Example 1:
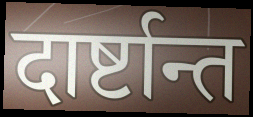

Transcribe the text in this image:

दार्ष्टान्त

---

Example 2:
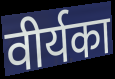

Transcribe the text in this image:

वीर्यका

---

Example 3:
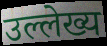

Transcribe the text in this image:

उल्लेख्य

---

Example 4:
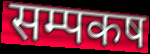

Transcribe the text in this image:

सम्पकष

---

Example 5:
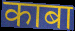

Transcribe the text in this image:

काबा